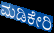
ಮಡಿಕೇರಿ